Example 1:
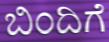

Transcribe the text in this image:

ಬಿಂದಿಗೆ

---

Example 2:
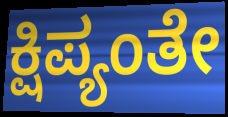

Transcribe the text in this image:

ಕ್ಷಿಪ್ಯಂತೇ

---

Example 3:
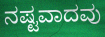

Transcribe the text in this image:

ನಷ್ಟವಾದವು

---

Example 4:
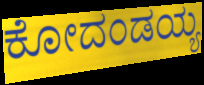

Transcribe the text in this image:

ಕೋದಂಡಯ್ಯ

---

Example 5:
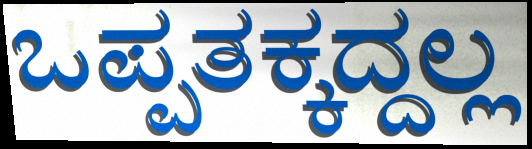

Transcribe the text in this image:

ಒಪ್ಪತಕ್ಕದ್ದಲ್ಲ